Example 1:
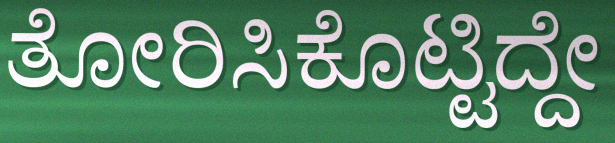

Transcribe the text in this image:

ತೋರಿಸಿಕೊಟ್ಟಿದ್ದೇ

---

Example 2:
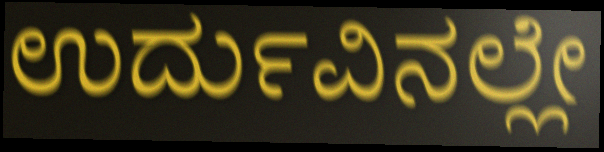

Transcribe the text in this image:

ಉರ್ದುವಿನಲ್ಲೇ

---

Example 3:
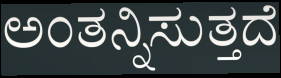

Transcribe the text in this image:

ಅಂತನ್ನಿಸುತ್ತದೆ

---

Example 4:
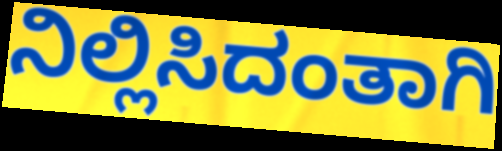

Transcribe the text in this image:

ನಿಲ್ಲಿಸಿದಂತಾಗಿ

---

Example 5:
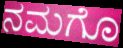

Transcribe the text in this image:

ನಮಗೊ